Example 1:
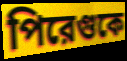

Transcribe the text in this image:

পিরেগুকে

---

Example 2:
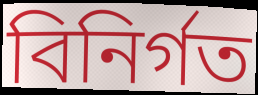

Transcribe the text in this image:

বিনির্গত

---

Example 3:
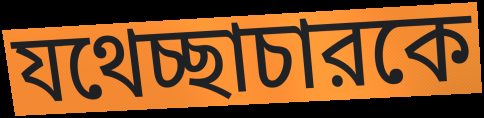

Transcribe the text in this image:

যথেচ্ছাচারকে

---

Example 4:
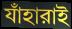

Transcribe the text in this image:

যাঁহারাই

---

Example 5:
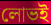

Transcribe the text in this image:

লোভই